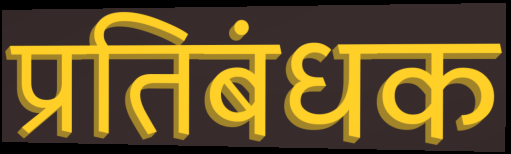
प्रतिबंधक